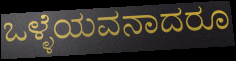
ಒಳ್ಳೆಯವನಾದರೂ